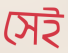
সেই